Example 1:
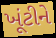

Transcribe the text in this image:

ખૂંટીને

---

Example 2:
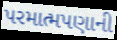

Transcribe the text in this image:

પરમાત્મપણાની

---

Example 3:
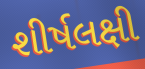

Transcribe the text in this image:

શીર્ષલક્ષી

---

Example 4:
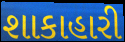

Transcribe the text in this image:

શાકાહારી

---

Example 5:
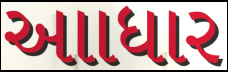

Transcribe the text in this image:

આાધાર